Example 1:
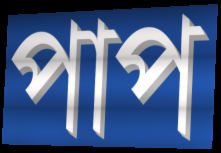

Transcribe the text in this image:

পাপ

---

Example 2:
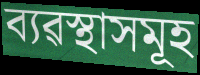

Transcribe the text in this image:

ব্যৱস্থাসমূহ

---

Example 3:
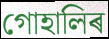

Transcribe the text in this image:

গোহালিৰ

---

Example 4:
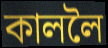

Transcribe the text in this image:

কাললৈ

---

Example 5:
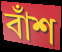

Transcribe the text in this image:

বাঁশ